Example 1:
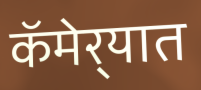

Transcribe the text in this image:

कॅमेर्‍यात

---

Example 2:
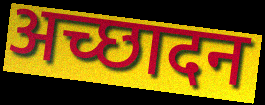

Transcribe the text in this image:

अच्छादन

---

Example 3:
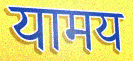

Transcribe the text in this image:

यामय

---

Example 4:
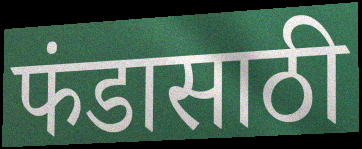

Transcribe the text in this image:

फंडासाठी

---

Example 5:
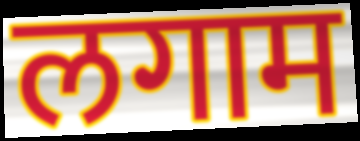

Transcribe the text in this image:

लगाम